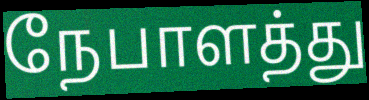
நேபாளத்து